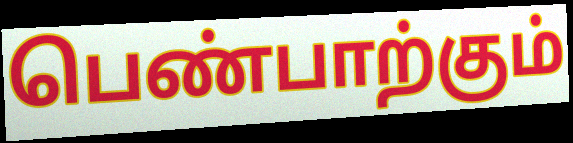
பெண்பாற்கும்